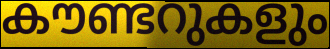
കൗണ്ടറുകളും